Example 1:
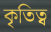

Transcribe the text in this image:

কৃতিত্ব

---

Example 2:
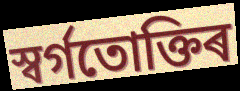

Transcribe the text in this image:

স্বৰ্গতোক্তিৰ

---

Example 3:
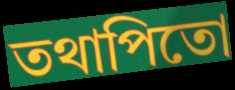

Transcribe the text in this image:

তথাপিতো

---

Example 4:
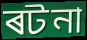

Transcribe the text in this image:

ৰটনা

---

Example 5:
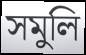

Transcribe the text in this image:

সমুলি